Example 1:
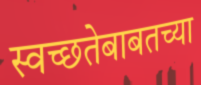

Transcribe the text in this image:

स्वच्छतेबाबतच्या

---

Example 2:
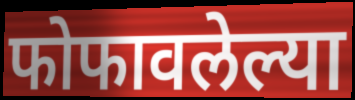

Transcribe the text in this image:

फोफावलेल्या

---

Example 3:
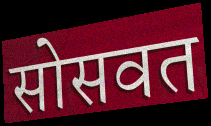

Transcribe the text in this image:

सोसवत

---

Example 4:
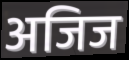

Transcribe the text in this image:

अजिज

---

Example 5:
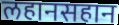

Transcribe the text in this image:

लहानसहान